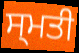
ਸ੍ਮਤੀ